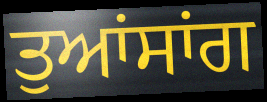
ਤੁਆਂਸਾਂਗ